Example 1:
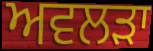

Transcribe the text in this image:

ਅਵਲੜਾ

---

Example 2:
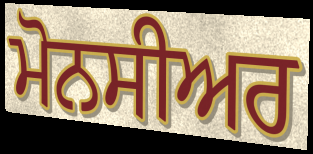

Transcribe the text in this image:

ਮੋਨਸੀਅਰ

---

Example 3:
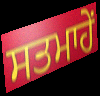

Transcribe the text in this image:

ਸਤਮਾਹੇਂ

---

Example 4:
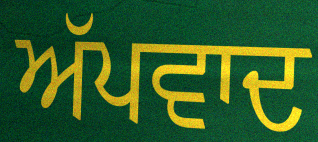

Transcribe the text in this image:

ਅੱਪਵਾਦ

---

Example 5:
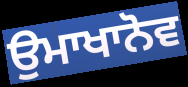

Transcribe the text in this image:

ਉਮਾਖਾਨੋਵ